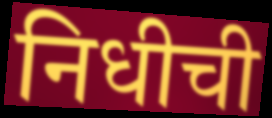
निधीची